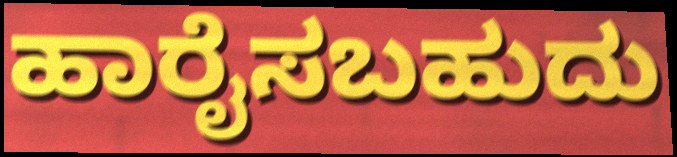
ಹಾರೈಸಬಹುದು